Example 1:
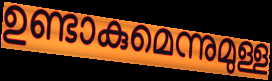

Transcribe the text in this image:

ഉണ്ടാകുമെന്നുമുള്ള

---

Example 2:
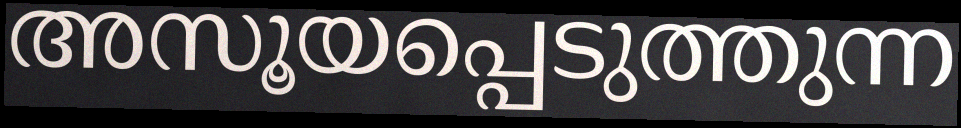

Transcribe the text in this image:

അസൂയപ്പെടുത്തുന്ന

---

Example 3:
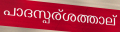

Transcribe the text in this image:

പാദസ്പര്ശത്താല്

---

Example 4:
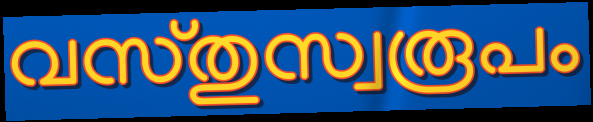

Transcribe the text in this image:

വസ്തുസ്വരൂപം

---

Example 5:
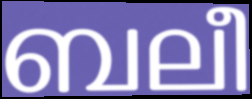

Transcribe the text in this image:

ബലീ